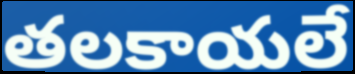
తలకాయలే